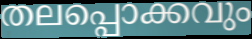
തലപ്പൊക്കവും